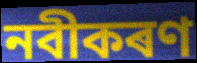
নবীকৰণ